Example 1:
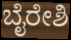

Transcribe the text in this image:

ಬೈರೇಶಿ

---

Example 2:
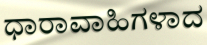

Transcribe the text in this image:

ಧಾರಾವಾಹಿಗಳಾದ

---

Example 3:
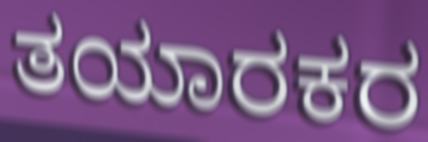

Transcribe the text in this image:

ತಯಾರಕರ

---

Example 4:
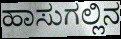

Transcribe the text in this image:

ಹಾಸುಗಲ್ಲಿನ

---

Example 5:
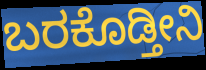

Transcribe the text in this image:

ಬರಕೊಡ್ತೀನಿ